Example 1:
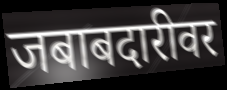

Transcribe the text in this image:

जबाबदारीवर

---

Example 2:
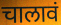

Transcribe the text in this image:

चालावं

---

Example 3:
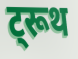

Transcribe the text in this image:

ट्रूथ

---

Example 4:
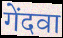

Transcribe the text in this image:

गेंदवा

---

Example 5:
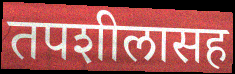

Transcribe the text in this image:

तपशीलासह